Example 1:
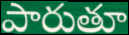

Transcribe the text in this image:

పారుతూ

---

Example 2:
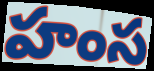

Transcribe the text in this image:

హంస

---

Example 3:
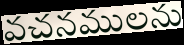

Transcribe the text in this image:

వచనములను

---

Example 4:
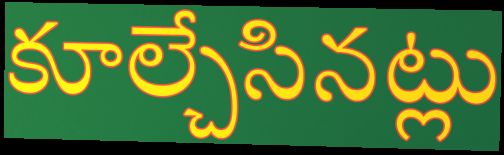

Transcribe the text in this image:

కూల్చేసినట్లు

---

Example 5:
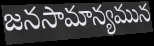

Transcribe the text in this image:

జనసామాన్యమున